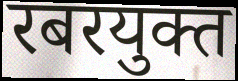
रबरयुक्त